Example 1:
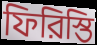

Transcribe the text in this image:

ফিরিস্তি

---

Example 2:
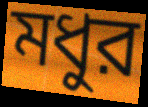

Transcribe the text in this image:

মধুর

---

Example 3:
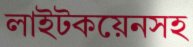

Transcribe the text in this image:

লাইটকয়েনসহ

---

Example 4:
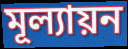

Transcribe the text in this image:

মূল্যায়ন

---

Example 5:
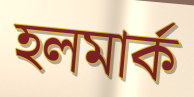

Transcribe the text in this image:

হলমার্ক